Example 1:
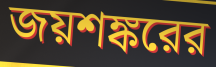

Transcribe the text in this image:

জয়শঙ্করের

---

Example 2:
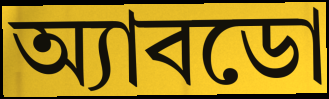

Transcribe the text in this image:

অ্যাবডো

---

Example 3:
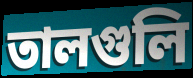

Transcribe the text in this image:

তালগুলি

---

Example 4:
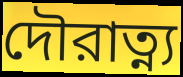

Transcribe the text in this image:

দৌরাত্ন্য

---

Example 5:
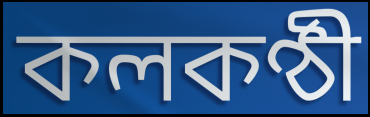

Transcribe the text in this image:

কলকণ্ঠী